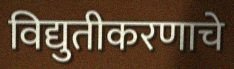
विद्युतीकरणाचे